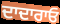
ਦਾਦਾਰਾਓ